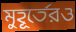
মুহূর্তেরও